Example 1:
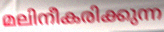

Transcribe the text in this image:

മലിനീകരിക്കുന്ന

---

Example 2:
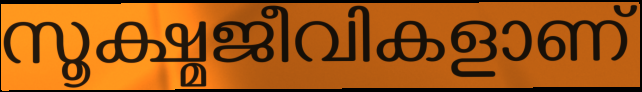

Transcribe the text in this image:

സൂക്ഷ്മജീവികളാണ്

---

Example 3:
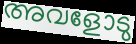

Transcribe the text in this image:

അവളോടു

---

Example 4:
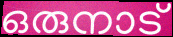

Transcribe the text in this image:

ഒരുനാട്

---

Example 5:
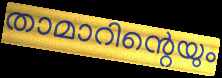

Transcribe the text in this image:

താമാറിന്റെയും